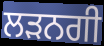
ਲੜਨਗੀ